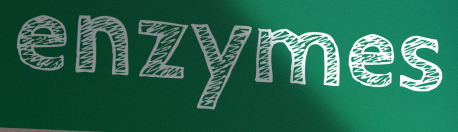
enzymes